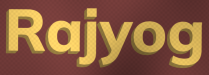
Rajyog